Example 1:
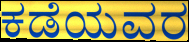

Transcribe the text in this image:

ಕಡೆಯವರ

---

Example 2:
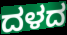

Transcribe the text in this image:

ದಳದ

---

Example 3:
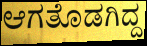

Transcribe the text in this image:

ಆಗತೊಡಗಿದ್ದ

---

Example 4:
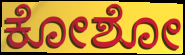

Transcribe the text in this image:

ಕೋಶೋ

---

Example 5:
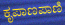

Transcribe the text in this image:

ಕೃಪಾಣಪಾಣಿ